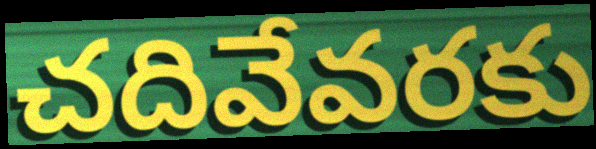
చదివేవరకు